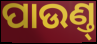
ପାଉଣ୍ତ୍